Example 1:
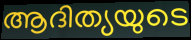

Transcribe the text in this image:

ആദിത്യയുടെ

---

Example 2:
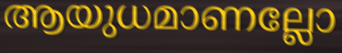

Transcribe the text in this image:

ആയുധമാണല്ലോ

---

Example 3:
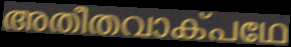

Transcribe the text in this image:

അതീതവാക്പഥേ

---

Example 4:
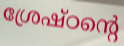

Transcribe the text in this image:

ശ്രേഷ്ഠന്റെ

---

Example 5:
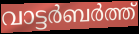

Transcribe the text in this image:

വാട്ടർബർത്ത്